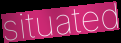
situated